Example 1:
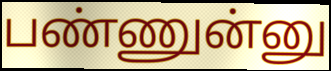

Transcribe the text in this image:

பண்ணுன்னு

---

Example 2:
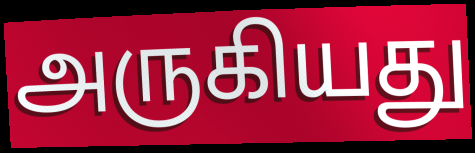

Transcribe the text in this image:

அருகியது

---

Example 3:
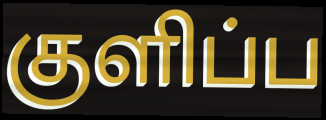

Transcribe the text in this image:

குளிப்ப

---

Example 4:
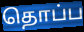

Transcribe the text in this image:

தொப்ப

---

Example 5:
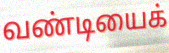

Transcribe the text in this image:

வண்டியைக்